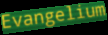
Evangelium